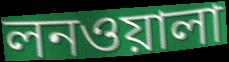
লনওয়ালা